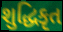
શુદ્ધિકૃત